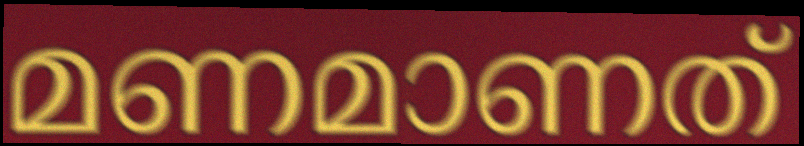
മണമാണത്